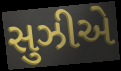
સુઝીએ